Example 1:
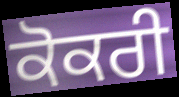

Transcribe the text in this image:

ਕੋਕਰੀ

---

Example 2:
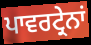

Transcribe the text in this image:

ਪਾਵਰਟ੍ਰੇਨਾਂ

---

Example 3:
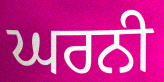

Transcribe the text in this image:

ਘਰਨੀ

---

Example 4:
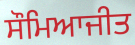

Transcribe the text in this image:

ਸੌਮਿਆਜੀਤ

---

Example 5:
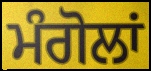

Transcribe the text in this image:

ਮੰਗੋਲਾਂ